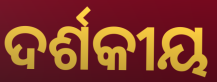
ଦର୍ଶକୀୟ